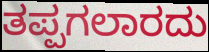
ತಪ್ಪಗಲಾರದು